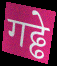
गढ्ढे